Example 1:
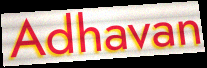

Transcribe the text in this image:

Adhavan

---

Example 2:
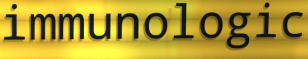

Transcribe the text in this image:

immunologic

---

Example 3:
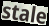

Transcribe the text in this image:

stale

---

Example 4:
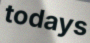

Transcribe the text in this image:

todays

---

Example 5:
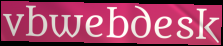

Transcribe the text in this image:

vbwebdesk